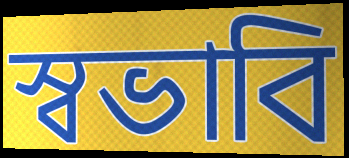
স্বভাবি